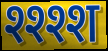
श्श्श्श